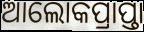
ଆଲୋକପ୍ରାପ୍ତା